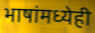
भाषांमध्येही